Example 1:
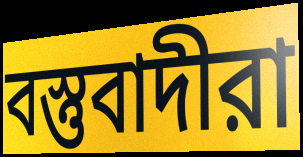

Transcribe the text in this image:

বস্তুবাদীরা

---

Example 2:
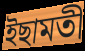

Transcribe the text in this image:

ইছামতী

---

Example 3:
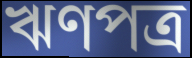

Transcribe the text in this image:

ঋণপত্র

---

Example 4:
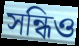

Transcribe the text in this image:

সন্ধিও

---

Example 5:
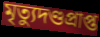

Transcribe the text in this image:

মৃত্যুদণ্ডপ্রাপ্ত